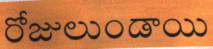
రోజులుండాయి